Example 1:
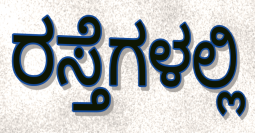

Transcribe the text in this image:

ರಸ್ತೆಗಳಲ್ಲಿ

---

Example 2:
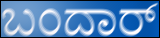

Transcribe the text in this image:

ಬಂದಾರ್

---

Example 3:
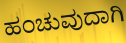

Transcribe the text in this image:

ಹಂಚುವುದಾಗಿ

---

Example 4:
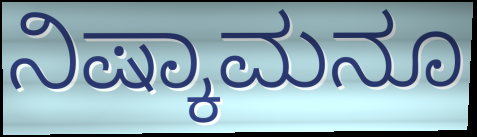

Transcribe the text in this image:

ನಿಷ್ಕಾಮನೂ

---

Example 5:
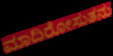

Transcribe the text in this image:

ಮಾದಿರೋಸುತನು